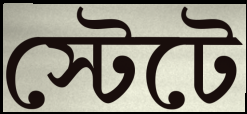
স্টেটে